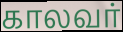
காலவர்